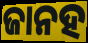
ଜାନହ